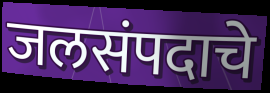
जलसंपदाचे